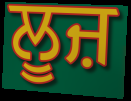
ਲੂਜ਼